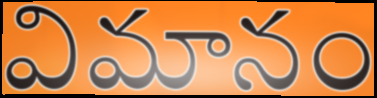
విమానం